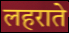
लहराते